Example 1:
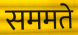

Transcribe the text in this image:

सममते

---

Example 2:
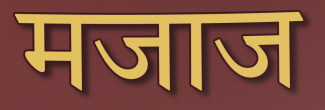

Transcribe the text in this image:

मजाज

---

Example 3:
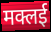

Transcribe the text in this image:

मक्लई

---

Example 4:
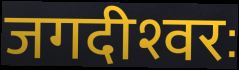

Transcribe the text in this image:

जगदीश्वरः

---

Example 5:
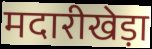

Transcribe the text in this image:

मदारीखेड़ा